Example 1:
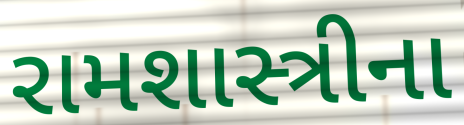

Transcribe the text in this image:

રામશાસ્ત્રીના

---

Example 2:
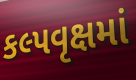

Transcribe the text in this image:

કલ્પવૃક્ષમાં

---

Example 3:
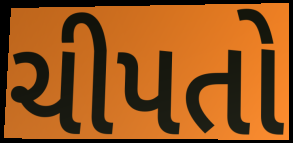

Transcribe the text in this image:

ચીપતો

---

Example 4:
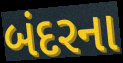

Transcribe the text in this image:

બંદરના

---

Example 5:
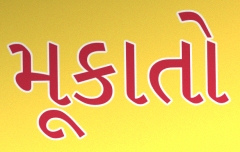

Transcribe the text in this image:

મૂકાતો